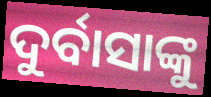
ଦୁର୍ବାସାଙ୍କୁ